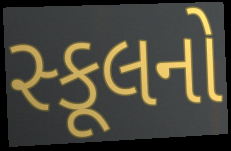
સ્કૂલનો